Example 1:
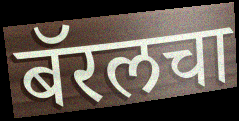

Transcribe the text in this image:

बॅरलचा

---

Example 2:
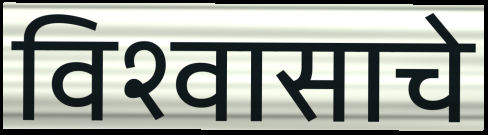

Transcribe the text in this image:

विश्वासाचे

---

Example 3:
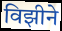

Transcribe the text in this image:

विझीने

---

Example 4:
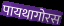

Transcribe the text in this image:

पायथागोरस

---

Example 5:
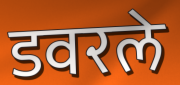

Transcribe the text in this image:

डवरले